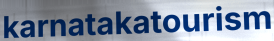
karnatakatourism